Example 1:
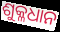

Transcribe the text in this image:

ଶୁକ୍ଳଧାନ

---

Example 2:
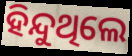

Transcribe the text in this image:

ହିନ୍ଦୁଥିଲେ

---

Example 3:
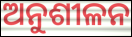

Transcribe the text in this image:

ଅନୁଶୀଳନ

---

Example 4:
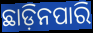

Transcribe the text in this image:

ଛାଡ଼ିନପାରି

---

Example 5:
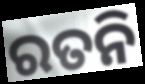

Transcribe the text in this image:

ରତନି